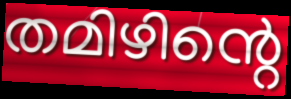
തമിഴിന്റെ